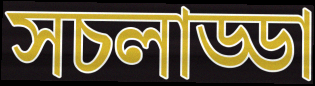
সচলাড্ডা